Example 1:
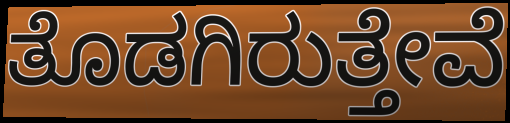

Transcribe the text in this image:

ತೊಡಗಿರುತ್ತೇವೆ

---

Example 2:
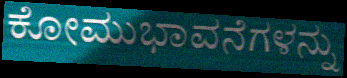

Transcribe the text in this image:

ಕೋಮುಭಾವನೆಗಳನ್ನು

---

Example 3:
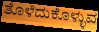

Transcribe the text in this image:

ತೊಳೆದುಕೊಳ್ಳುವ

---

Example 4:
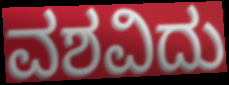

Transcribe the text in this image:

ವಶವಿದು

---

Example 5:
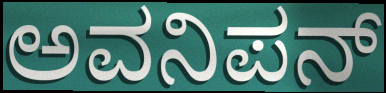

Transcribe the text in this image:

ಅವನಿಪನ್